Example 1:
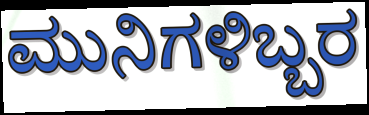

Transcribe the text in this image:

ಮುನಿಗಳಿಬ್ಬರ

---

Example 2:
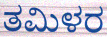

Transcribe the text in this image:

ತಮಿಳರ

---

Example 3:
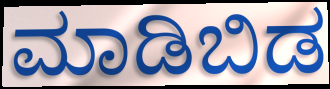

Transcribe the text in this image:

ಮಾಡಿಬಿಡ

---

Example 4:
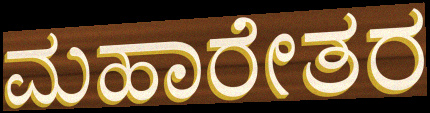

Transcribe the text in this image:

ಮಹಾರೇತರ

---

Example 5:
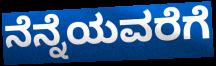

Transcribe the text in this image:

ನೆನ್ನೆಯವರೆಗೆ